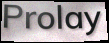
Prolay